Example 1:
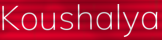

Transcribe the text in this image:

Koushalya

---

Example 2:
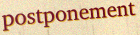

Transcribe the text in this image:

postponement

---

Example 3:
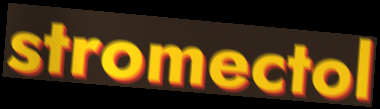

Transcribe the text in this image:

stromectol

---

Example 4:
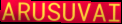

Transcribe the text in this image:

ARUSUVAI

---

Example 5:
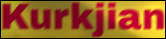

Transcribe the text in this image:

Kurkjian